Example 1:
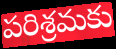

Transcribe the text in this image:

పరిశ్రమకు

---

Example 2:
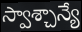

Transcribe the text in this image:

స్వాశ్చాన్యే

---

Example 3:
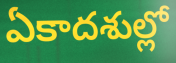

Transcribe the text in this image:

ఏకాదశుల్లో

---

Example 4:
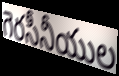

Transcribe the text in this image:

గెరసీనీయుల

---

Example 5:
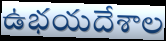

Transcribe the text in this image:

ఉభయదేశాల